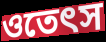
ওতেৎস